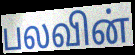
பலவின்